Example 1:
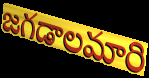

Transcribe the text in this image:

జగడాలమారి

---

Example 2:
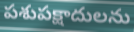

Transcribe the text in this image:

పశుపక్షాదులను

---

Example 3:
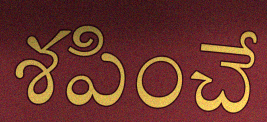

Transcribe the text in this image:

శపించే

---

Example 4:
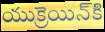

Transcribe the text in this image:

యుక్రెయిన్‌కి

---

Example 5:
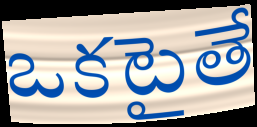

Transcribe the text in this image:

ఒకటైతే